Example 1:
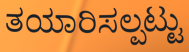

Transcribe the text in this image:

ತಯಾರಿಸಲ್ಪಟ್ಟು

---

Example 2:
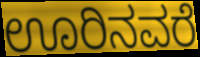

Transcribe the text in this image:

ಊರಿನವರೆ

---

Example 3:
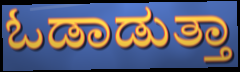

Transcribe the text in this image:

ಓಡಾಡುತ್ತಾ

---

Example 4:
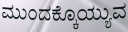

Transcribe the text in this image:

ಮುಂದಕ್ಕೊಯ್ಯುವ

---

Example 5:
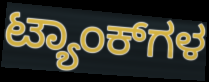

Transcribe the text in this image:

ಟ್ಯಾಂಕ್‌ಗಳ